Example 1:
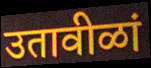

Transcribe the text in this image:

उतावीळां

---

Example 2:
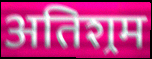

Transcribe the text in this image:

अतिश्रम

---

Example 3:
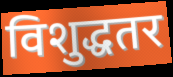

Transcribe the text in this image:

विशुद्धतर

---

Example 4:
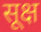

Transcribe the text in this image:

सूक्ष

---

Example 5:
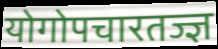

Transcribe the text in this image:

योगोपचारतज्ज्ञ